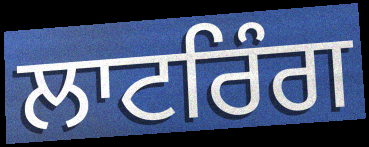
ਲਾਟਰਿੰਗ